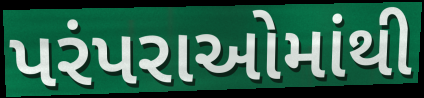
પરંપરાઓમાંથી